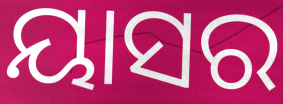
ୟାସର